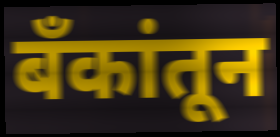
बँकांतून